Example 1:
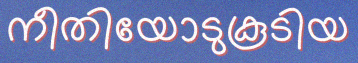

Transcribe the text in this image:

നീതിയോടുകൂടിയ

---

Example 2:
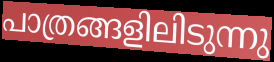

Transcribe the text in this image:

പാത്രങ്ങളിലിടുന്നു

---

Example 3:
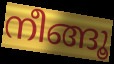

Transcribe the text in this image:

നീങ്ങൂ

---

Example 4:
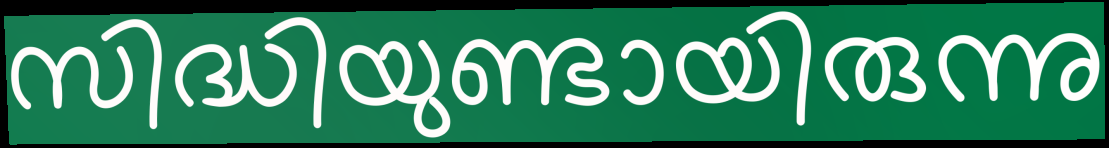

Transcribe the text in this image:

സിദ്ധിയുണ്ടായിരുന്നു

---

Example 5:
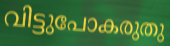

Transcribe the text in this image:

വിട്ടുപോകരുതു